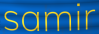
samir